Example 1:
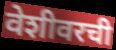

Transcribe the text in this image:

वेशीवरची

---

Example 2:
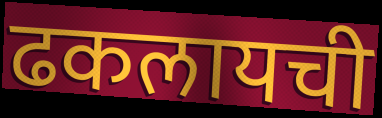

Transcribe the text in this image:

ढकलायची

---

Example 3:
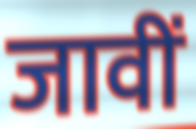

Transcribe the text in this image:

जावीं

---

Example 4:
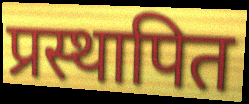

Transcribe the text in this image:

प्रस्थापित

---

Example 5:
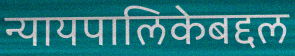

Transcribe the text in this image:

न्यायपालिकेबद्दल